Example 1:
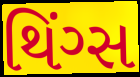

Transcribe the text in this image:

થિંગ્સ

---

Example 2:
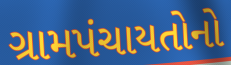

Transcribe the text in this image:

ગ્રામપંચાયતોનો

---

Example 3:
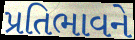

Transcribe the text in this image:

પ્રતિભાવને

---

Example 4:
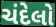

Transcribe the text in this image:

ચંદેલો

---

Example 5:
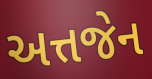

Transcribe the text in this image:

અત્તજેન